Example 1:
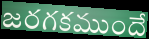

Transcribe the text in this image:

జరగకముందే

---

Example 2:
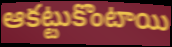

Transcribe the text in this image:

ఆకట్టుకొంటాయి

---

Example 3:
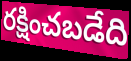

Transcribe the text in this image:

రక్షించబడేది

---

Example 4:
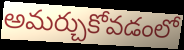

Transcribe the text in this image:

అమర్చుకోవడంలో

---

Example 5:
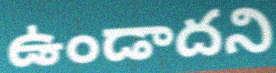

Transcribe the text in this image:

ఉండాదని